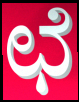
ಛೆ